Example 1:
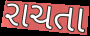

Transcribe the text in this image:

રાચતા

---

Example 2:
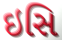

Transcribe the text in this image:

ઇસિ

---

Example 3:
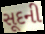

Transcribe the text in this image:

સૂદની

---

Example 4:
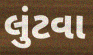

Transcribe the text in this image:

લુંટવા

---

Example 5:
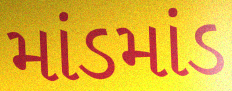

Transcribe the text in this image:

માંડમાંડ